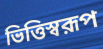
ভিত্তিস্বরূপ